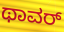
ಥಾವರ್